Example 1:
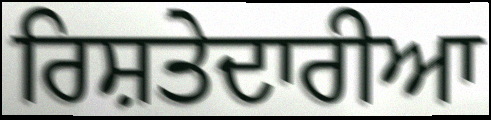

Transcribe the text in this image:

ਰਿਸ਼ਤੇਦਾਰੀਆ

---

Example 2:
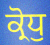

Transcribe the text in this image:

ਕ੍ਰੋਧੁ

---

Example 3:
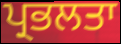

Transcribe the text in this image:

ਪ੍ਰਭਲਤਾ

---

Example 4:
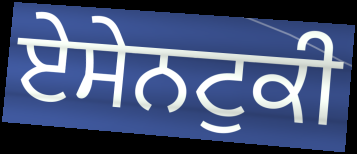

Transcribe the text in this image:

ਏਸੇਨਟੁਕੀ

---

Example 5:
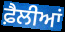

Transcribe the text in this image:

ਫ਼ੈਲੀਆਂ